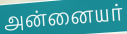
அன்னையர்